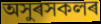
অসুৰসকলৰ